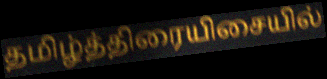
தமிழ்த்திரையிசையில்